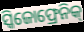
ସ୍କିଜୋଫ୍ରେନିକ୍